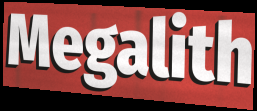
Megalith